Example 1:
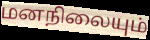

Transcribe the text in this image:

மனநிலையும்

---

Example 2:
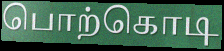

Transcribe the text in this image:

பொற்கொடி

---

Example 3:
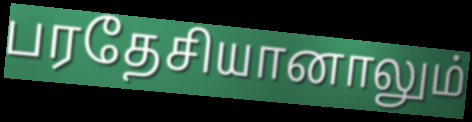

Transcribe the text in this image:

பரதேசியானாலும்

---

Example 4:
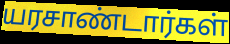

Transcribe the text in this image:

யரசாண்டார்கள்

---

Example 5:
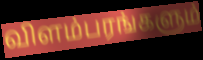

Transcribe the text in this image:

விளம்பரங்களும்